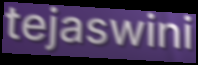
tejaswini